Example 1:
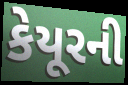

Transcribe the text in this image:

કેયૂરની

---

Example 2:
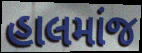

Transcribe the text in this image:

હાલમાંજ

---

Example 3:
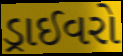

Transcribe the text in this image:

ડ્રાઈવરો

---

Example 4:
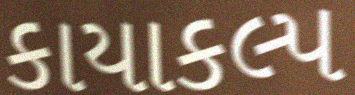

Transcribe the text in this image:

કાયાકલ્પ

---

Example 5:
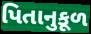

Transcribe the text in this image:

પિતાનુકૂળ